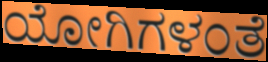
ಯೋಗಿಗಳಂತೆ